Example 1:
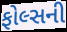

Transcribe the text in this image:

ફોલ્સની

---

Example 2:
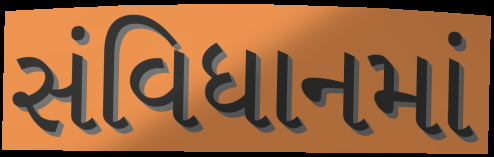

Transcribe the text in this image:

સંવિધાનમાં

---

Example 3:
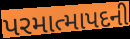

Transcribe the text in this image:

પરમાત્માપદની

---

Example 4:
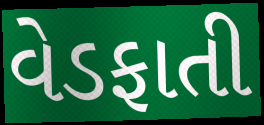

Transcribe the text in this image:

વેડફાતી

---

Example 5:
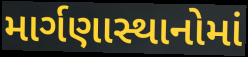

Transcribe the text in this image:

માર્ગણાસ્થાનોમાં